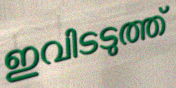
ഇവിടടുത്ത്